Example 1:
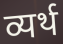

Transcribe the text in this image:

व्यर्थ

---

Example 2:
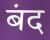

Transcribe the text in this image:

बंद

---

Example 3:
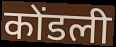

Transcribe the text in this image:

कोंडली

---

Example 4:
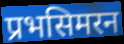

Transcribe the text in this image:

प्रभसिमरन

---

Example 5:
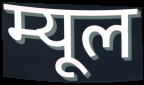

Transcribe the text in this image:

म्यूल